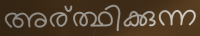
അര്ത്ഥിക്കുന്ന